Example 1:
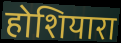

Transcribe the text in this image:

होशियारा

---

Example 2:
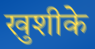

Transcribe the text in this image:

खुशीके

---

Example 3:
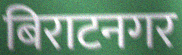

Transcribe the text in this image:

बिराटनगर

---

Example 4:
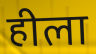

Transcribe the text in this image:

हीला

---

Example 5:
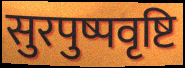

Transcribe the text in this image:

सुरपुष्पवृष्टि